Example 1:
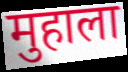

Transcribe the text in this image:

मुहाला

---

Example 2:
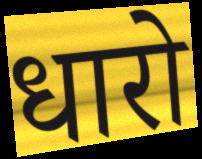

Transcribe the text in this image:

धारो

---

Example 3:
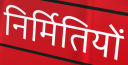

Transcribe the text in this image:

निर्मितियों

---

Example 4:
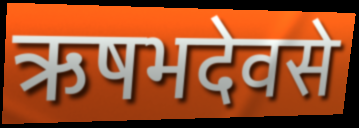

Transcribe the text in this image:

ऋषभदेवसे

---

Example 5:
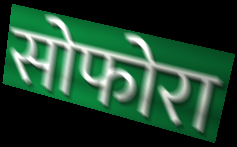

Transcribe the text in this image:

सोफोरा